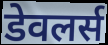
डेवलर्स